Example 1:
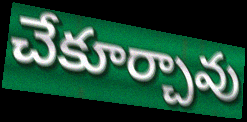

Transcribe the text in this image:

చేకూర్చావు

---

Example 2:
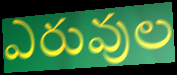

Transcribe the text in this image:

ఎరువుల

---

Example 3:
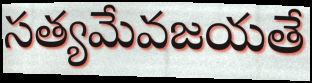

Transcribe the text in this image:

సత్యమేవజయతే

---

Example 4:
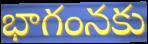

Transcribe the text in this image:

భాగంనకు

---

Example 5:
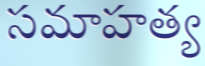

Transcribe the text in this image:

సమాహత్య